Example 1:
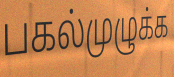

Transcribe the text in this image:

பகல்முழுக்க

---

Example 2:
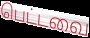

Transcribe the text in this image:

பெட்டவை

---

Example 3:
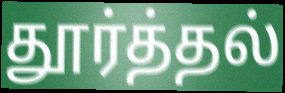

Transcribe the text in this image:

தூர்த்தல்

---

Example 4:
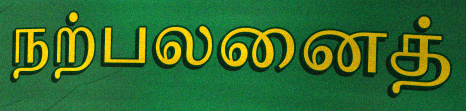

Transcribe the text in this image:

நற்பலனைத்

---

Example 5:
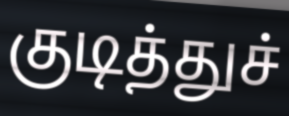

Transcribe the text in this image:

குடித்துச்